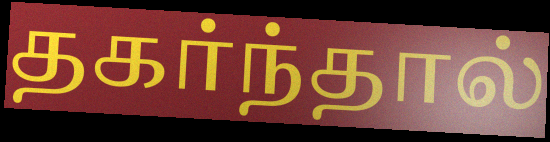
தகர்ந்தால்